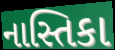
નાસ્તિકા